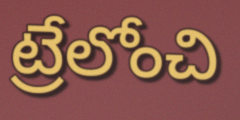
ట్రేలోంచి